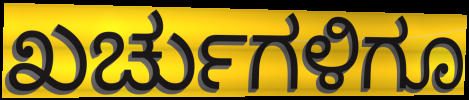
ಖರ್ಚುಗಳಿಗೂ